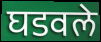
घडवले